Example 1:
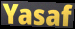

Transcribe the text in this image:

Yasaf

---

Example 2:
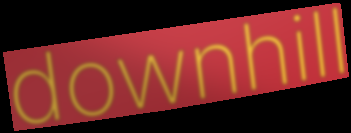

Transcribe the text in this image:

downhill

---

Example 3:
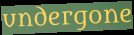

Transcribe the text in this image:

undergone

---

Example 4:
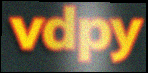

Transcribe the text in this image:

vdpy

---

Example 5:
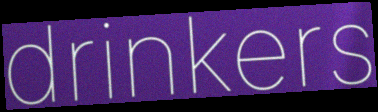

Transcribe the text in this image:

drinkers